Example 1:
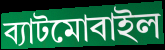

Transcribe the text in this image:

ব্যাটমোবাইল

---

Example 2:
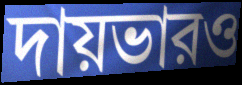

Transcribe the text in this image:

দায়ভারও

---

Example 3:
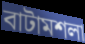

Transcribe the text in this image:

বাটামশলা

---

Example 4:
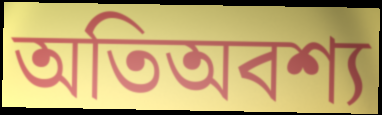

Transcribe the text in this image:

অতিঅবশ্য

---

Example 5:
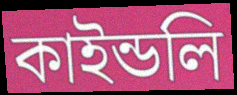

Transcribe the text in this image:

কাইন্ডলি